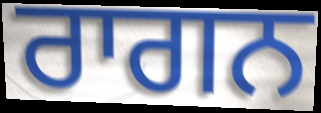
ਰਾਗਨ